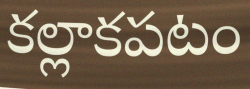
కల్లాకపటం